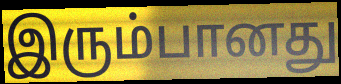
இரும்பானது